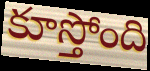
కూస్తోంది